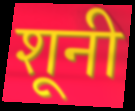
शूनी